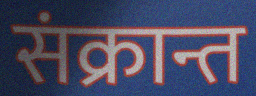
संक्रान्त